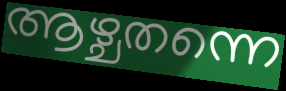
ആഴ്ചതന്നെ